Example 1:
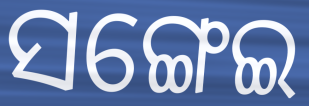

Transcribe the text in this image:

ସଙ୍ଗେଇ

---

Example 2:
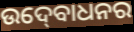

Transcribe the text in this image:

ଉଦ୍‍ବୋଧନର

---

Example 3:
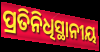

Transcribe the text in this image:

ପ୍ରତିନିଧିସ୍ଥାନୀୟ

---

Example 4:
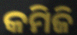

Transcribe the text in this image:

କମିଜି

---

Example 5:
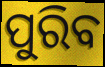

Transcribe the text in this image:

ପୁରିବ